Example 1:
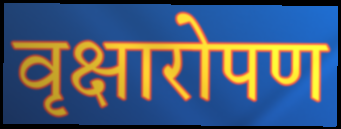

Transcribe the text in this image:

वृक्षारोपण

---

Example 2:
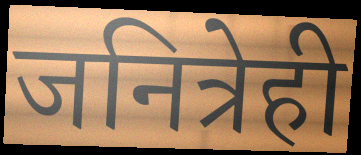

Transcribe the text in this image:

जनित्रेही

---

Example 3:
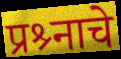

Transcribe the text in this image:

प्रश्र्नाचे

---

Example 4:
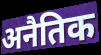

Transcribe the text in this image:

अनैतिक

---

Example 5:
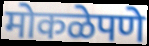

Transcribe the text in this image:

मोकळेपणे